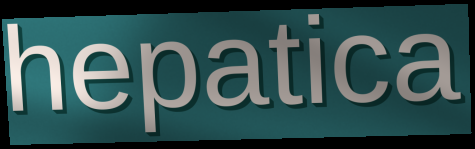
hepatica